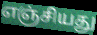
எஞ்சியது